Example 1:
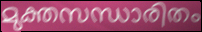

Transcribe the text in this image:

മുക്തസന്ധാരിതം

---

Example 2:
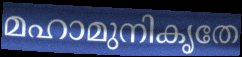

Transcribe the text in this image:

മഹാമുനികൃതേ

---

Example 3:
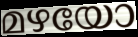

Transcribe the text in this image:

മഴയോ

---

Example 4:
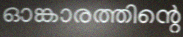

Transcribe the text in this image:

ഓങ്കാരത്തിന്റെ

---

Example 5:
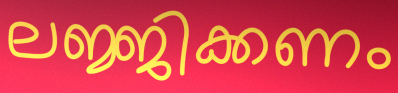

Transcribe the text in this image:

ലജ്ജിക്കണം